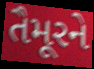
તૈમૂરને